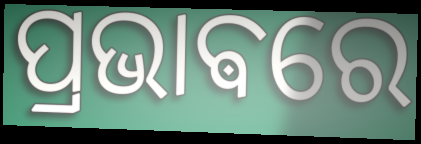
ପ୍ରଭାଵରେ